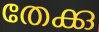
തേക്കു